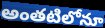
అంతటిలోనూ